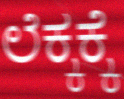
ಲೆಕ್ಕಕ್ಕೆ